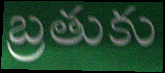
బ్రతుకు